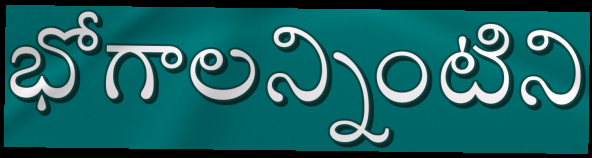
భోగాలన్నింటిని